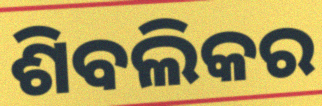
ଶିବଲିକର